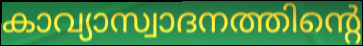
കാവ്യാസ്വാദനത്തിന്റെ